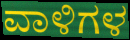
ವಾಳಿಗಳ